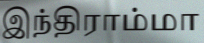
இந்திராம்மா